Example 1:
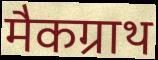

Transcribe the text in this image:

मैकग्राथ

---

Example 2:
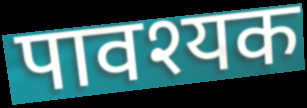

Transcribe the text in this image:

पावश्यक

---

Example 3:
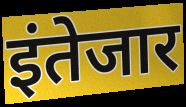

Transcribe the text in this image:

इंतेजार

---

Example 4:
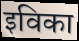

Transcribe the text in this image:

इविका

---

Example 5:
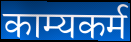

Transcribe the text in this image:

काम्यकर्म